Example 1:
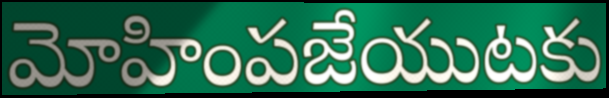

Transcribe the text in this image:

మోహింపజేయుటకు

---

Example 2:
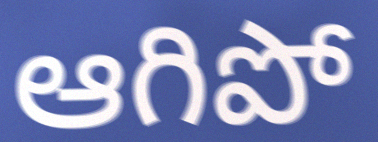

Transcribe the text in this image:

ఆగిపో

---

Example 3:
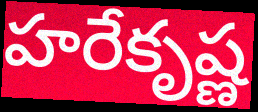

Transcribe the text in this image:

హరేకృష్ణ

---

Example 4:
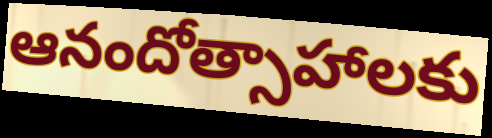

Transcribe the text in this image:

ఆనందోత్సాహాలకు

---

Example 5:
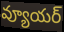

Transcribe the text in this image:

వ్యూయర్